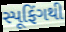
સ્પૂફિંગથી